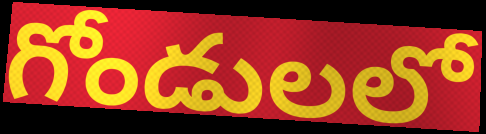
గోండులలో